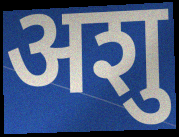
अशु